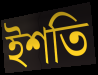
ইশতি